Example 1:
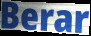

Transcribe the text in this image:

Berar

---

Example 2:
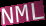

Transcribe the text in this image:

NML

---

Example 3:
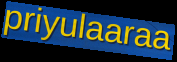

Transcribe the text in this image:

priyulaaraa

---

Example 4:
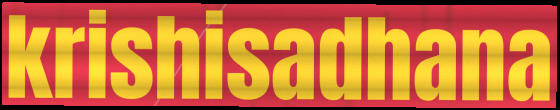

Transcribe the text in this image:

krishisadhana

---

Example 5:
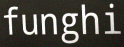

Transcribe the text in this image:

funghi